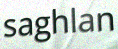
saghlan